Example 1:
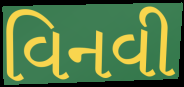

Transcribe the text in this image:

વિનવી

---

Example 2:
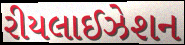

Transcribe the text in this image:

રીયલાઈઝેશન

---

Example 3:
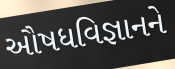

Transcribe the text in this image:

ઔષધવિજ્ઞાનને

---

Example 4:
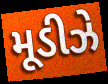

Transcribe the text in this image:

મૂડીઝે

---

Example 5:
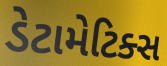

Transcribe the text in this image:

ડેટામેટિક્સ